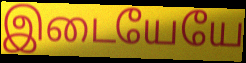
இடையேயே